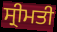
ਸ੍ਰੀਮਤੀ